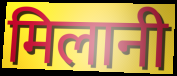
मिलानी